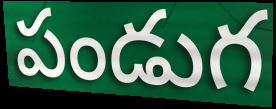
పండుగ